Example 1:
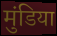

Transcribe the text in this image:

मुंडिया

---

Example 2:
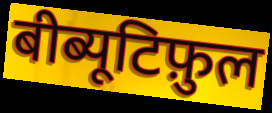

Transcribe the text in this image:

बीब्यूटिफ़ुल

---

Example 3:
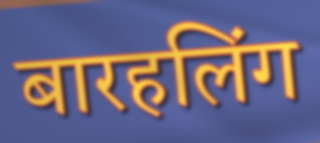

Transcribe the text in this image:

बारहलिंग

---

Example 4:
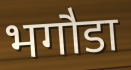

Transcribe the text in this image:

भगौडा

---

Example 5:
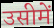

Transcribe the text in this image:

उसीमें